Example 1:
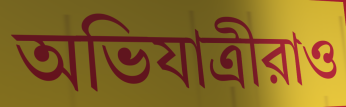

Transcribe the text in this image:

অভিযাত্রীরাও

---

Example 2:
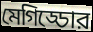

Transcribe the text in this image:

মেগিড্ডোর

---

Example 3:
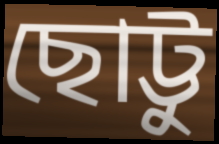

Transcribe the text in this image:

ছোট্টু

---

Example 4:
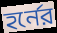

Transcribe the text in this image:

হর্নের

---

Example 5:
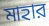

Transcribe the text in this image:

মাহার